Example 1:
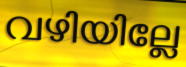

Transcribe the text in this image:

വഴിയില്ലേ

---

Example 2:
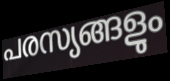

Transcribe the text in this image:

പരസ്യങ്ങളും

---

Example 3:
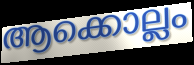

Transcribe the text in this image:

ആക്കൊല്ലം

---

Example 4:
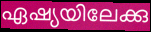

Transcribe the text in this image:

ഏഷ്യയിലേക്കു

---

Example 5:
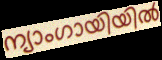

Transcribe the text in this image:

ന്യാംഗായിയിൽ